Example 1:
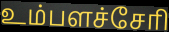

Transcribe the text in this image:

உம்பளச்சேரி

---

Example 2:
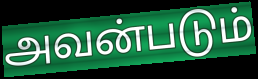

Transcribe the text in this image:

அவன்படும்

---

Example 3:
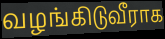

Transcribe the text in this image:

வழங்கிடுவீராக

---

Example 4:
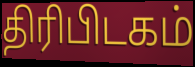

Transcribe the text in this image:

திரிபிடகம்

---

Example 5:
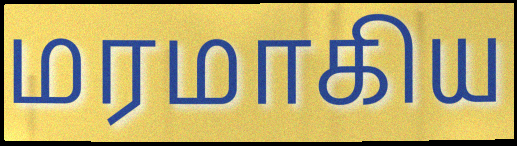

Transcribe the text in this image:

மரமாகிய